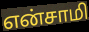
என்சாமி